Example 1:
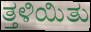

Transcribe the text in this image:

ತ್ತಳಿಯಿತು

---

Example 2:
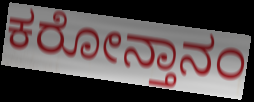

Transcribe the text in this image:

ಕರೋನ್ತಾನಂ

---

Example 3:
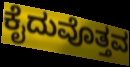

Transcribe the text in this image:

ಕೈದುವೊತ್ತವ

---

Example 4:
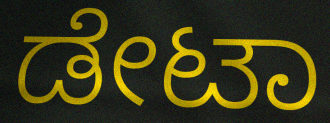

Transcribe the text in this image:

ಡೇಟಾ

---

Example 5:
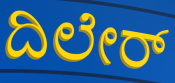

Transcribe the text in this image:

ದಿಲೇರ್